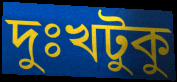
দুঃখটুকু